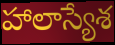
హాలాస్యేశ